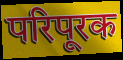
परिपूरक